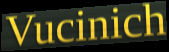
Vucinich